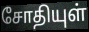
சோதியுள்